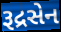
રૂદ્રસેન